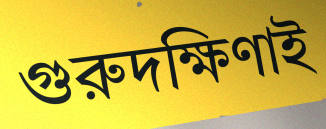
গুরুদক্ষিণাই